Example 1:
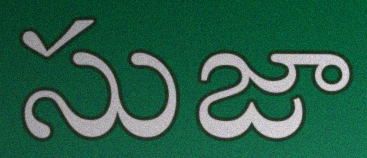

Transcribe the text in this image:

సుజా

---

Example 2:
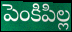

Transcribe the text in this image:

పెంకిపిల్ల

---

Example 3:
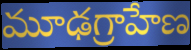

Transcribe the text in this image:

మూఢగ్రాహేణ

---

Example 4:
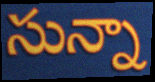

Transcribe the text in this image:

సున్నా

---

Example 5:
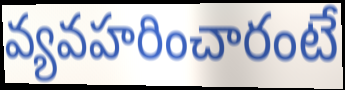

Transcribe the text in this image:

వ్యవహరించారంటే